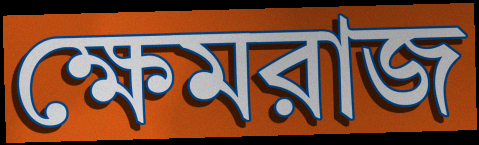
ক্ষেমরাজ